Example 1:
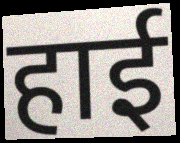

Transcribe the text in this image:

हाई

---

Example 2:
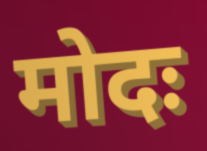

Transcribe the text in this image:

मोदः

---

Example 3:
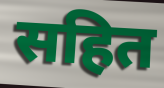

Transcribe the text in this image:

सहित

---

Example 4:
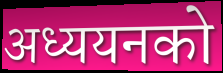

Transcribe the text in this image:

अध्ययनको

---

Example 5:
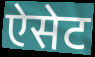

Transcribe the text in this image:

ऐसेट